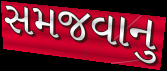
સમજવાનુ